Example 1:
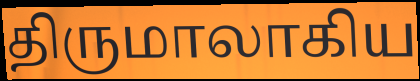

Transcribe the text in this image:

திருமாலாகிய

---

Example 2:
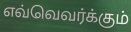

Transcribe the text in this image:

எவ்வெவர்க்கும்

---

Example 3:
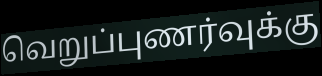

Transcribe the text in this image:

வெறுப்புணர்வுக்கு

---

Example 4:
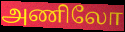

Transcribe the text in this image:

அணிலோ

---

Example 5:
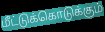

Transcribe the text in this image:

மீட்டுக்கொடுக்கும்